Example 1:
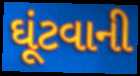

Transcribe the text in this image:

ઘૂંટવાની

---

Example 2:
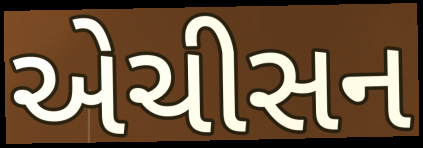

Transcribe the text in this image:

એચીસન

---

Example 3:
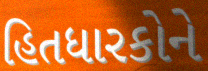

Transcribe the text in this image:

હિતધારકોને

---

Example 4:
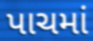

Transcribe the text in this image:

પાચમાં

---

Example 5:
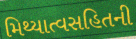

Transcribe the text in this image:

મિથ્યાત્વસહિતની